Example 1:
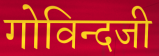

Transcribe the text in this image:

गोविन्दजी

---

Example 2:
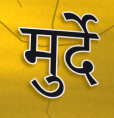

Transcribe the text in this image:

मुर्दे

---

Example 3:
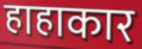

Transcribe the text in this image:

हाहाकार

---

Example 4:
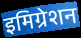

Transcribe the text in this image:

इमिग्रेशन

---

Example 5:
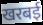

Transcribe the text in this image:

खरबई